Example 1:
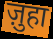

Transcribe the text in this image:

ज़ुहा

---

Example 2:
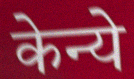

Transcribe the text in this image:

केन्ये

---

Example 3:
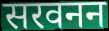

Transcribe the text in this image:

सरवनन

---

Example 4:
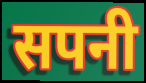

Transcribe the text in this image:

सपनी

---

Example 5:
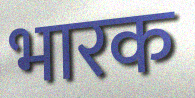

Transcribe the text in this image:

भारक